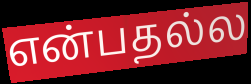
என்பதல்ல